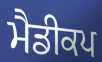
ਮੈਡੀਕਪ